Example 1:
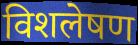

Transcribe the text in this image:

विशलेषण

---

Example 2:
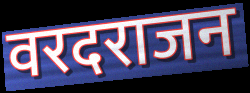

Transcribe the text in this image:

वरदराजन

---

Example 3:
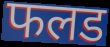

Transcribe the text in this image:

फलड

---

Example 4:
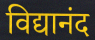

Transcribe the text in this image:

विद्यानंद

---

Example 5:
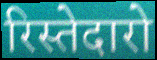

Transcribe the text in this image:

रिस्तेदारो